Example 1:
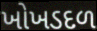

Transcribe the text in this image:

ખોખડદળ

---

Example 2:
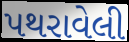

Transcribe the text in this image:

પથરાવેલી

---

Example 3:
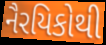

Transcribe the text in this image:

નૈરયિકોથી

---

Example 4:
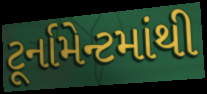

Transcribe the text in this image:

ટૂર્નામેન્ટમાંથી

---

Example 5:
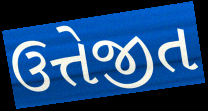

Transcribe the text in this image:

ઉત્તેજીત